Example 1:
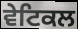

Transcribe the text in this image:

ਵੇਟਿਕਲ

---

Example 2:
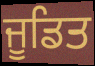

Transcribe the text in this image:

ਜੂਡਿਤ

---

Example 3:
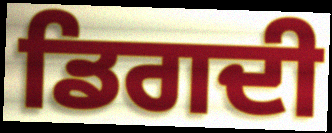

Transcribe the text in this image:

ਡਿਗਦੀ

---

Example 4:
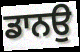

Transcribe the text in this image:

ਡਾਨਉ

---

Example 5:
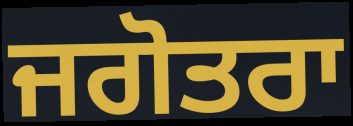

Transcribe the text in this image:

ਜਗੋਤਰਾ